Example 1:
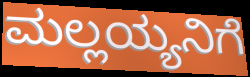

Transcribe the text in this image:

ಮಲ್ಲಯ್ಯನಿಗೆ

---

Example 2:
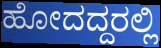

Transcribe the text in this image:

ಹೋದದ್ದರಲ್ಲಿ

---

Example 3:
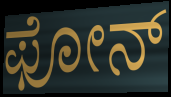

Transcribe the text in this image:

ಫೋನ್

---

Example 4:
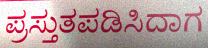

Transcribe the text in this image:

ಪ್ರಸ್ತುತಪಡಿಸಿದಾಗ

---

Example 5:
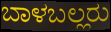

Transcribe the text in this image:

ಬಾಳಬಲ್ಲರು